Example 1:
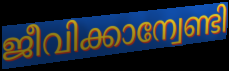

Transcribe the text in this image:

ജീവിക്കാന്വേണ്ടി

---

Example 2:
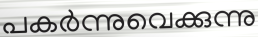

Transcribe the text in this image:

പകർന്നുവെക്കുന്നു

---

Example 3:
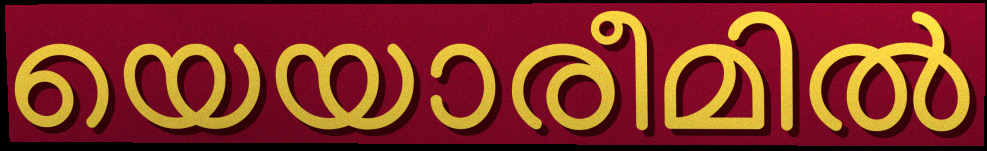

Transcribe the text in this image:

യെയാരീമിൽ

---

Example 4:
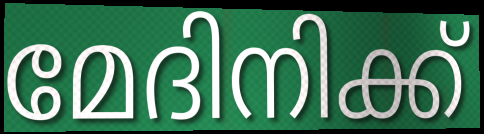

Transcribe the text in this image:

മേദിനിക്ക്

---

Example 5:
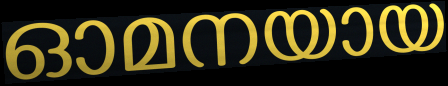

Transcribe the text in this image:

ഓമനയായ